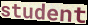
student